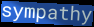
sympathy